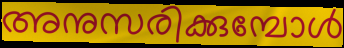
അനുസരിക്കുമ്പോൾ